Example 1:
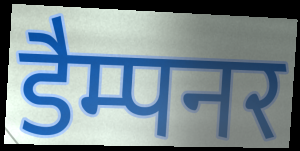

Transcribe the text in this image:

डैम्पनर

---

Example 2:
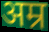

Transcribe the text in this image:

अम्र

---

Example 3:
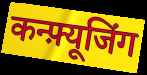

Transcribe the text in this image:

कन्फ़्यूजिंग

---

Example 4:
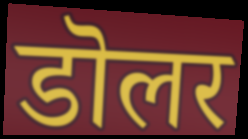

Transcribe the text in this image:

डॊलर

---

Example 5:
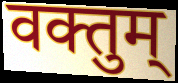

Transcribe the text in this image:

वक्तुम्